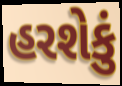
હરશેકું